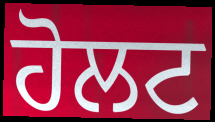
ਹੋਲਟ